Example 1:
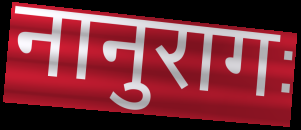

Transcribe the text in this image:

नानुरागः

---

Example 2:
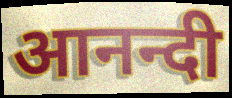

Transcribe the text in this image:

आनन्दी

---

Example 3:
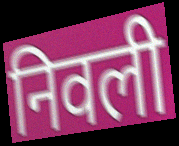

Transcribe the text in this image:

निवली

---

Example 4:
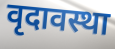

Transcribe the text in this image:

वृदावस्था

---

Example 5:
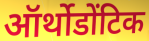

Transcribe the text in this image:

ऑर्थोडोंटिक